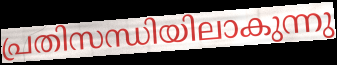
പ്രതിസന്ധിയിലാകുന്നു